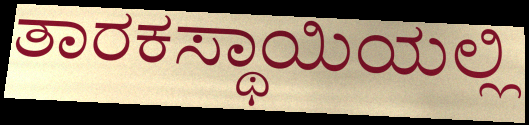
ತಾರಕಸ್ಥಾಯಿಯಲ್ಲಿ